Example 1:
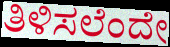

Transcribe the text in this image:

ತಿಳಿಸಲೆಂದೇ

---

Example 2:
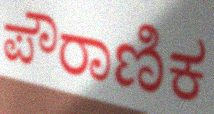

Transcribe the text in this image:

ಪೌರಾಣಿಕ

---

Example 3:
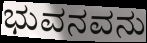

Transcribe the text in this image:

ಭುವನವನು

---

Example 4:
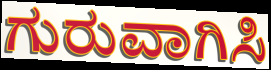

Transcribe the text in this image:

ಗುರುವಾಗಿಸಿ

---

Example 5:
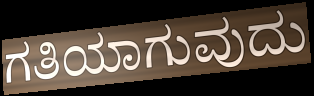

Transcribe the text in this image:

ಗತಿಯಾಗುವುದು